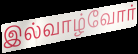
இல்வாழ்வோர்